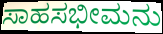
ಸಾಹಸಭೀಮನು